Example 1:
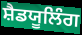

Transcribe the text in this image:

ਸ਼ੈਡਯੂਲਿੰਗ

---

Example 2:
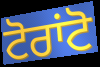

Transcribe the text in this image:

ਟੋਰਾਂਟੋ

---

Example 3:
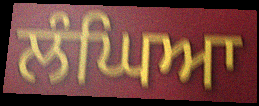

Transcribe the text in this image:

ਲੰਘਿਆ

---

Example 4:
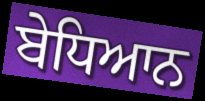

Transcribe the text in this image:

ਬੇਧਿਆਨ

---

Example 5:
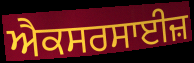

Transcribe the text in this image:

ਐਕਸਰਸਾਈਜ਼